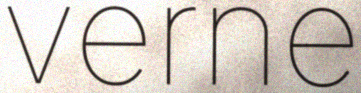
verne